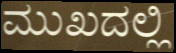
ಮುಖದಲ್ಲಿ